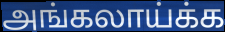
அங்கலாய்க்க